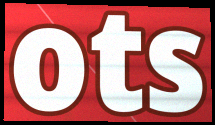
ots